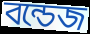
বন্ডেজ